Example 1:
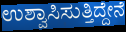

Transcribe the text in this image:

ಉಶ್ವಾಸಿಸುತ್ತಿದ್ದೇನೆ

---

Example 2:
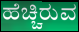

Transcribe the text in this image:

ಹೆಚ್ಚಿರುವ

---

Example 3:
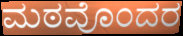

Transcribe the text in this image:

ಮಠವೊಂದರ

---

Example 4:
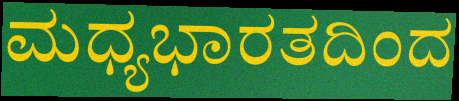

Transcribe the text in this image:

ಮಧ್ಯಭಾರತದಿಂದ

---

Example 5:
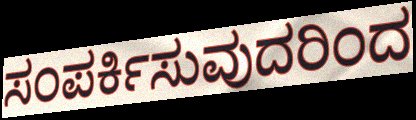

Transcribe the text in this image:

ಸಂಪರ್ಕಿಸುವುದರಿಂದ